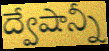
ద్వేషాన్నీ